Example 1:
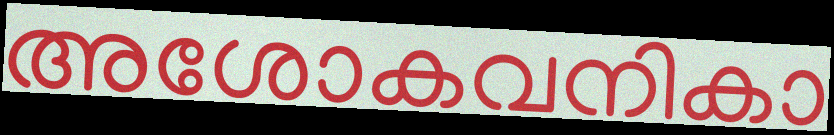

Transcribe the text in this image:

അശോകവനികാ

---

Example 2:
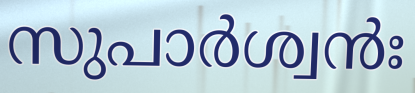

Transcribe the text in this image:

സുപാർശ്വൻഃ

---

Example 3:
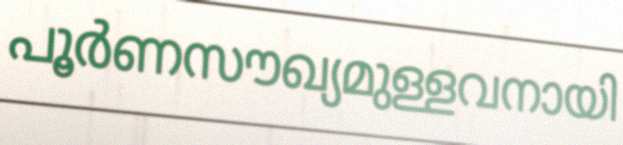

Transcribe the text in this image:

പൂർണസൗഖ്യമുള്ളവനായി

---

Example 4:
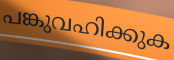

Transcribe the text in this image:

പങ്കുവഹിക്കുക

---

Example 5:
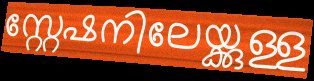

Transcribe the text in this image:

സ്റ്റേഷനിലേയ്ക്കുള്ള